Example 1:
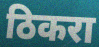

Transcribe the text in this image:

ठिकरा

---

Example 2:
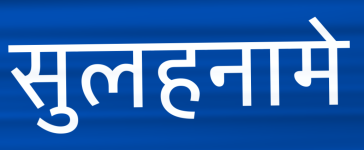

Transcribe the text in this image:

सुलहनामे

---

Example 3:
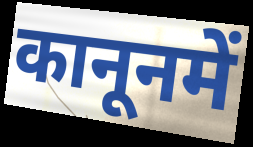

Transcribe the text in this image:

कानूनमें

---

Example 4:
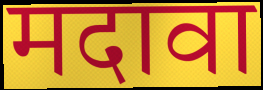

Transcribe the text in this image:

मदावा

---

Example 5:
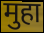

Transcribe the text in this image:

मुहा